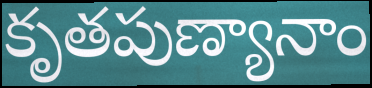
కృతపుణ్యానాం